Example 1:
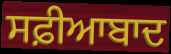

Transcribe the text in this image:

ਸਫ਼ੀਆਬਾਦ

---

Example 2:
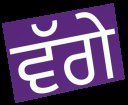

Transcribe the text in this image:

ਵੱਗੇ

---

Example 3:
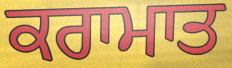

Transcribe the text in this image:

ਕਰਾਮਾਤ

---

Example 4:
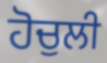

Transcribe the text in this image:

ਹੋਚੁਲੀ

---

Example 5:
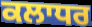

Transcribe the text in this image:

ਕਲਾਧਰ